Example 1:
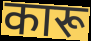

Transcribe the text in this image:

कारू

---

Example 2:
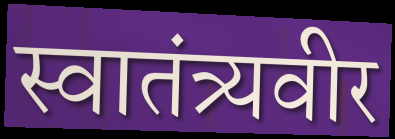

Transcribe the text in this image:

स्वातंत्र्यवीर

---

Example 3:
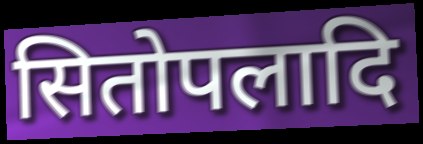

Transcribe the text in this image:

सितोपलादि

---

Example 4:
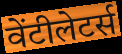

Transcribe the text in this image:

वेंटीलेटर्स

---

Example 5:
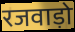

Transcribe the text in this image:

रजवाड़ो